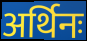
अर्थिनः